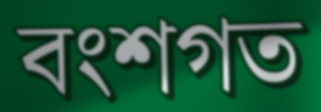
বংশগত